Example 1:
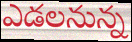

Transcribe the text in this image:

ఎడలనున్న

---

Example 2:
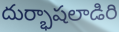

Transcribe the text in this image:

దుర్భాషలాడిరి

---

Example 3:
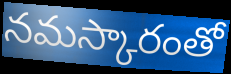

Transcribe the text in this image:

నమస్కారంతో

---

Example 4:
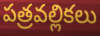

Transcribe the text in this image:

పత్రవల్లికలు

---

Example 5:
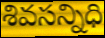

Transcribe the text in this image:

శివసన్నిధి